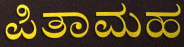
ಪಿತಾಮಹ